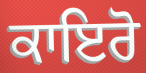
ਕਾਇਰੋ